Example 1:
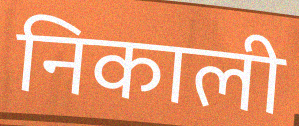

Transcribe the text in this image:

निकाली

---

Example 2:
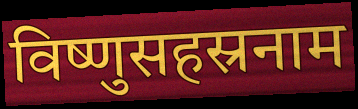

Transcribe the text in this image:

विष्णुसहस्रनाम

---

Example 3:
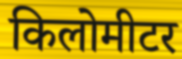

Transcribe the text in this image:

किलोमीटर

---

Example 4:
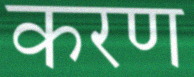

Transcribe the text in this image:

करण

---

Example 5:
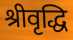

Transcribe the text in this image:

श्रीवृद्धि